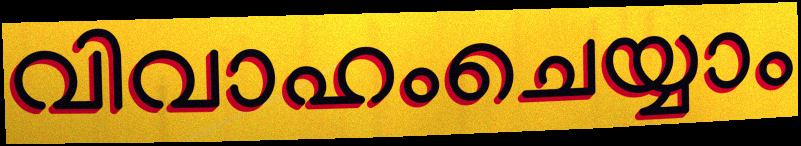
വിവാഹംചെയ്യാം